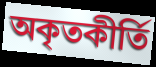
অকৃতকীর্তি